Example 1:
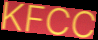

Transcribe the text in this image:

KFCC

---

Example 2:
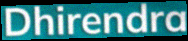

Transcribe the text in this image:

Dhirendra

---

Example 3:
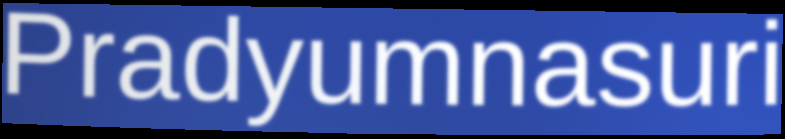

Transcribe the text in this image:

Pradyumnasuri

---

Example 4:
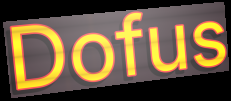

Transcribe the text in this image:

Dofus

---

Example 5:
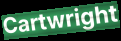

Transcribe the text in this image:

Cartwright